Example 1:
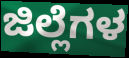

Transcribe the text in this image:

ಜಿಲ್ಲೆಗಳ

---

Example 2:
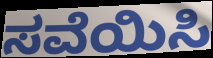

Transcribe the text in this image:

ಸವೆಯಿಸಿ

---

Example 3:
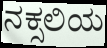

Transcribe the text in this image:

ನಕ್ಸಲಿಯ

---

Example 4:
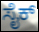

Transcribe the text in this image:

ಸೈಕ್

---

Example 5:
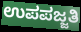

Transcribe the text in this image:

ಉಪಪಜ್ಜತಿ